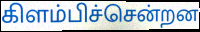
கிளம்பிச்சென்றன